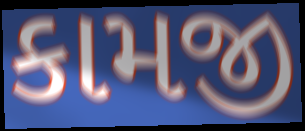
કામજી